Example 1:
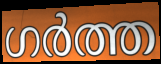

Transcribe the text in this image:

ഗർത്ത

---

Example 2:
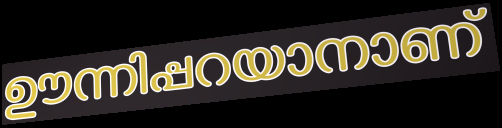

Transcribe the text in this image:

ഊന്നിപ്പറയാനാണ്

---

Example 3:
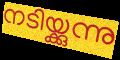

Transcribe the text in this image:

നടിയ്ക്കുന്നു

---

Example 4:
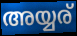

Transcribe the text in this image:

അയ്യര്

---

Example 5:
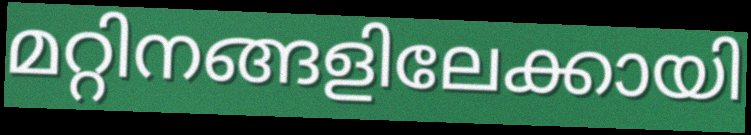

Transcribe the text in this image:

മറ്റിനങ്ങളിലേക്കായി